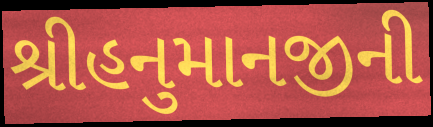
શ્રીહનુમાનજીની